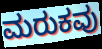
ಮರುಕವು